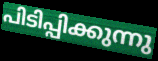
പിടിപ്പിക്കുന്നു